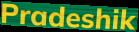
Pradeshik